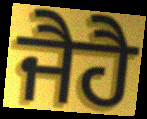
ਜੈਹੈ